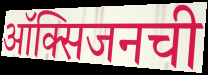
ऑक्सिजनची